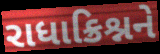
રાધાક્રિશ્નને